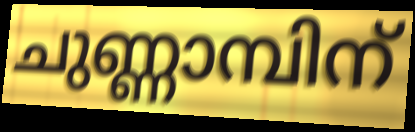
ചുണ്ണാമ്പിന്